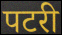
पटरी